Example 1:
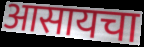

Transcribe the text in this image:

आसायचा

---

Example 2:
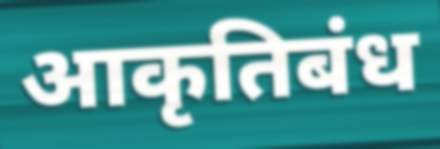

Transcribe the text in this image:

आकृतिबंध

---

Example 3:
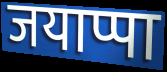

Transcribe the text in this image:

जयाप्पा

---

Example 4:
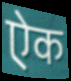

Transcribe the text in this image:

ऐक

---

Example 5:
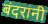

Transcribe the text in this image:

बंदरांनी